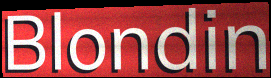
Blondin